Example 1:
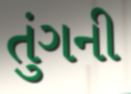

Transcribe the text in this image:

તુંગની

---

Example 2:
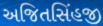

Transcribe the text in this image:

અજિતસિંહજી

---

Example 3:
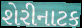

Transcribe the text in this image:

શેરીનાટક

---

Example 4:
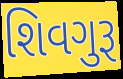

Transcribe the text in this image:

શિવગુરૂ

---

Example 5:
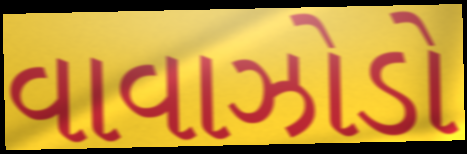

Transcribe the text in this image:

વાવાઝોડો